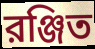
রঞ্জিত